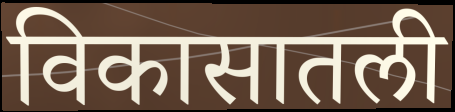
विकासातली